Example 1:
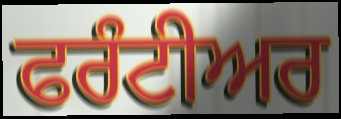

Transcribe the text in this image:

ਫਰੰਟੀਅਰ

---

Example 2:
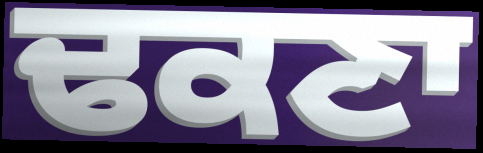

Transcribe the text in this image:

ਢਕਣਾ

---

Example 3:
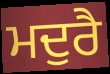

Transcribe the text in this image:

ਮਦੁਰੈ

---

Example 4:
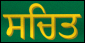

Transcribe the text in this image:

ਸਚਿਤ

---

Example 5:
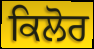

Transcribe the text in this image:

ਕਿਲੋਰ